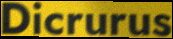
Dicrurus